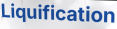
Liquification